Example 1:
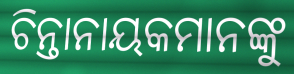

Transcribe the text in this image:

ଚିନ୍ତାନାୟକମାନଙ୍କୁ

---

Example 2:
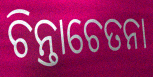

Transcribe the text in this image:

ଚିନ୍ତାଚେତନା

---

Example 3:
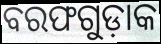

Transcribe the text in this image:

ବରଫଗୁଡ଼ାକ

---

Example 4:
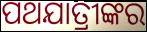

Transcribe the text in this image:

ପଥଯାତ୍ରୀଙ୍କର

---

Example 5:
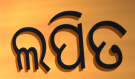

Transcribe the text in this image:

ଲପିତ